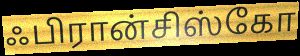
ஃபிரான்சிஸ்கோ